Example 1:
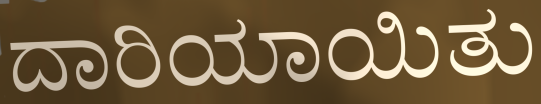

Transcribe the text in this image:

ದಾರಿಯಾಯಿತು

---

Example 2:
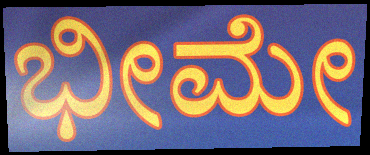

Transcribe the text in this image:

ಭೀಮೇ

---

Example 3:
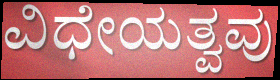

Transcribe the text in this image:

ವಿಧೇಯತ್ವವು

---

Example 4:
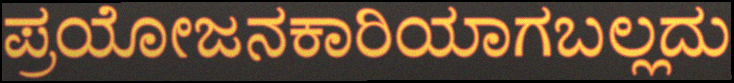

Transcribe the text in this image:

ಪ್ರಯೋಜನಕಾರಿಯಾಗಬಲ್ಲದು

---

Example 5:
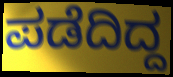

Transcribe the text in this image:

ಪಡೆದಿದ್ದ